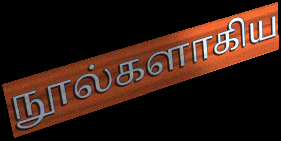
நூல்களாகிய